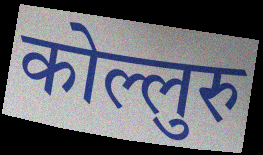
कोल्लुरु